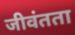
जीवंतता